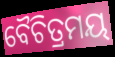
ବୈଚିତ୍ରମୟ